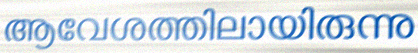
ആവേശത്തിലായിരുന്നു